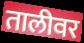
तालीवर